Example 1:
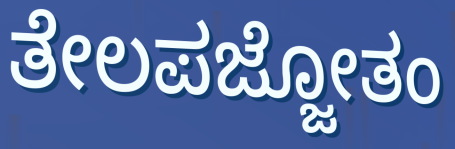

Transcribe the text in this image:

ತೇಲಪಜ್ಜೋತಂ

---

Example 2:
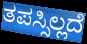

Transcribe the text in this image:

ತಪಸ್ಸಿಲ್ಲದೆ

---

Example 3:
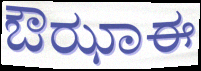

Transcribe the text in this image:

ಔಝಾಈ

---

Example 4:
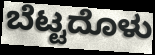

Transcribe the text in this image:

ಬೆಟ್ಟದೊಳು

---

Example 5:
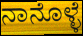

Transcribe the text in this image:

ನಾನೊಳ್ಳೆ